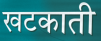
खटकाती